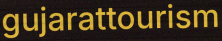
gujarattourism